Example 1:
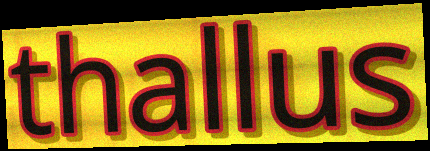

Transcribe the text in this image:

thallus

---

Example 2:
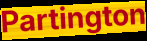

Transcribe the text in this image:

Partington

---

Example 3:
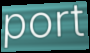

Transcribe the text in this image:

port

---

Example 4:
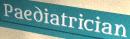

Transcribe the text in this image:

Paediatrician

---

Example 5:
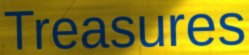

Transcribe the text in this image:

Treasures